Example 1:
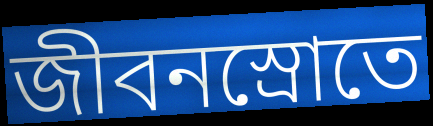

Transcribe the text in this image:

জীবনস্রোতে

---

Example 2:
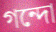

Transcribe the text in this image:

গন্দো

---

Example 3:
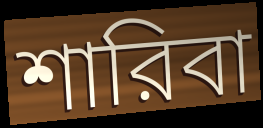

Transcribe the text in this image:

শারিবা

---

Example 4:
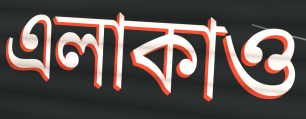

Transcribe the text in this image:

এলাকাও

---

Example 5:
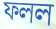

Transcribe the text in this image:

ফলল